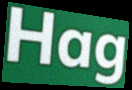
Hag